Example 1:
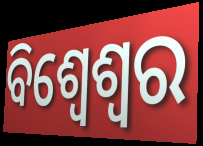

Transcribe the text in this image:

ବିଶ୍ୱେଶ୍ୱର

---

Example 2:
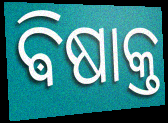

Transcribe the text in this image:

ଵିଷାକ୍ତ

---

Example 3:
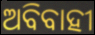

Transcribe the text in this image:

ଅବିବାହୀ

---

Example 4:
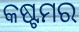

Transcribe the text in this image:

କଷ୍ଟମର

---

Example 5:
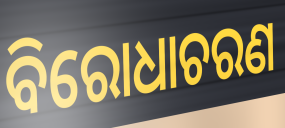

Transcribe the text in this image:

ବିରୋଧାଚରଣ